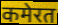
कमेरत